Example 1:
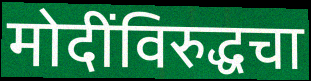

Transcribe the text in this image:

मोदींविरुद्धचा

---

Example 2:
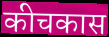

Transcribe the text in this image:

कीचकास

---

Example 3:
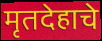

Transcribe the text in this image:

मृतदेहाचे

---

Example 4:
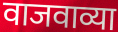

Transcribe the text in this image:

वाजवाव्या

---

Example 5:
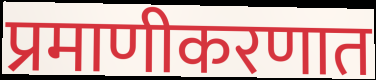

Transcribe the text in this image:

प्रमाणीकरणात